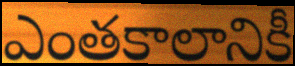
ఎంతకాలానికీ